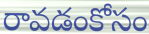
రావడంకోసం